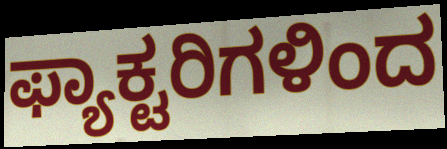
ಫ್ಯಾಕ್ಟರಿಗಳಿಂದ